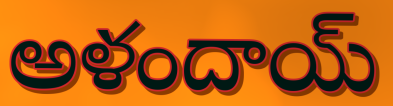
అళందాయ్